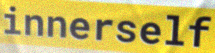
innerself